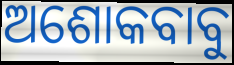
ଅଶୋକବାବୁ